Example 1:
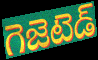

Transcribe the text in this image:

గెజెటెడ్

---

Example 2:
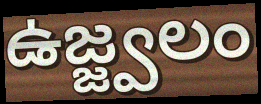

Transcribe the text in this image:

ఉజ్జ్వలం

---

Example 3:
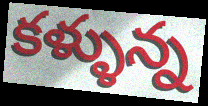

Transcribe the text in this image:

కళ్ళున్న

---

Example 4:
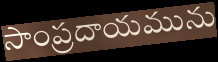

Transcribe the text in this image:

సాంప్రదాయమును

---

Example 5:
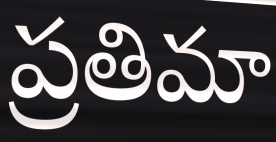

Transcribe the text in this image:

ప్రతిమా